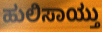
ಹುಲಿಸಾಯ್ತು